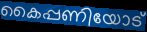
കൈപ്പണിയോട്